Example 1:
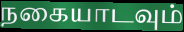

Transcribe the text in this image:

நகையாடவும்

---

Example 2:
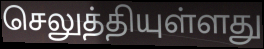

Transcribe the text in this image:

செலுத்தியுள்ளது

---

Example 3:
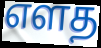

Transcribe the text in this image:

எளத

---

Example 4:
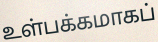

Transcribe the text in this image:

உள்பக்கமாகப்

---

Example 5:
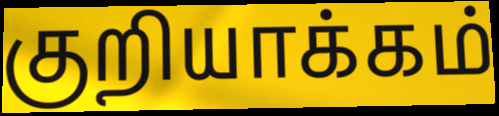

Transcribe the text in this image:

குறியாக்கம்